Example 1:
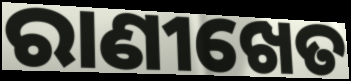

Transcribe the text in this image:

ରାଣୀଖେତ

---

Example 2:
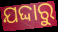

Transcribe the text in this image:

ଯଦ୍ଦାରୁ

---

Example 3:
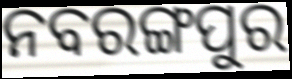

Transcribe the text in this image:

ନବରଙ୍ଗପୁର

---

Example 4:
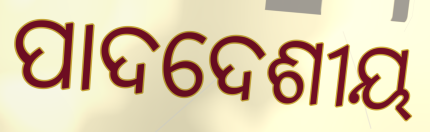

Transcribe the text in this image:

ପାଦଦେଶୀୟ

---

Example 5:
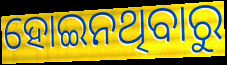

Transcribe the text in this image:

ହୋଇନଥିବାରୁ